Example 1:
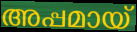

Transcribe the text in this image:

അപ്പമായ്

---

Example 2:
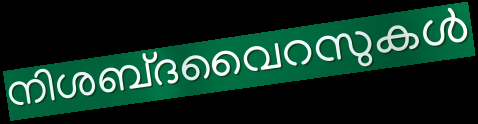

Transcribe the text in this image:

നിശബ്‌ദവൈറസുകൾ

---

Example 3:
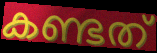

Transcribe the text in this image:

കണ്ടത്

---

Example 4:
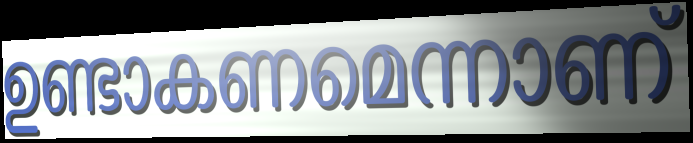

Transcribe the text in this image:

ഉണ്ടാകണമെന്നാണ്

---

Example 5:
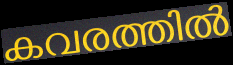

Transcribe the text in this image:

കവരത്തിൽ